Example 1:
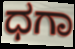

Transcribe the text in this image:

ಧಗಾ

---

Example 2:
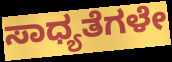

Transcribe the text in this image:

ಸಾಧ್ಯತೆಗಳೇ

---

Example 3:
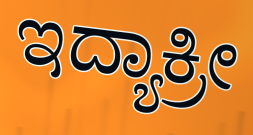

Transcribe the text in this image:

ಇದ್ಯಾಕ್ರೀ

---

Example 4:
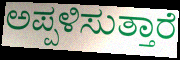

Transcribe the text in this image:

ಅಪ್ಪಳಿಸುತ್ತಾರೆ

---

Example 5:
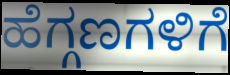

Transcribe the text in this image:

ಹೆಗ್ಗಣಗಳಿಗೆ